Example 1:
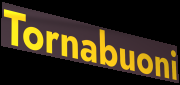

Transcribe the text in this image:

Tornabuoni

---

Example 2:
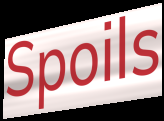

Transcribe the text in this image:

Spoils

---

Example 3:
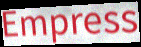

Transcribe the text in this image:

Empress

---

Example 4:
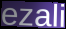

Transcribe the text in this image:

ezali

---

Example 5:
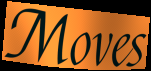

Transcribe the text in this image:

Moves